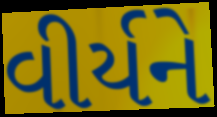
વીર્યને